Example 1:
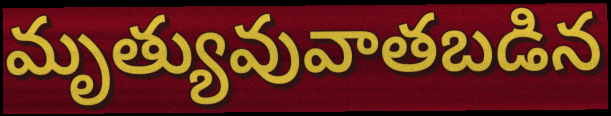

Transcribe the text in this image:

మృత్యువువాతబడిన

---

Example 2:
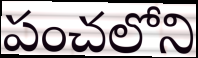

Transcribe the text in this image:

పంచలోని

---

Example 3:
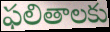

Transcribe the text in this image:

ఫలితాలకు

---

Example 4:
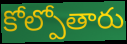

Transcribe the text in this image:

కోల్పోతారు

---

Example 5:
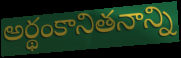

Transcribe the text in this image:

అర్థంకానితనాన్ని